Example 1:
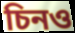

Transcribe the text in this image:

চিনও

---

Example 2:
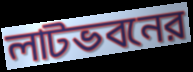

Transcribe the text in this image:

লাটভবনের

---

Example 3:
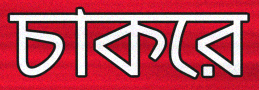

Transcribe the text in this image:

চাকরে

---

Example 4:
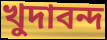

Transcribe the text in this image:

খুদাবন্দ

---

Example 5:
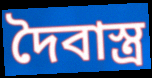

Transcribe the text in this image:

দৈবাস্ত্র